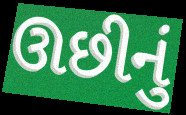
ઊછીનું